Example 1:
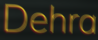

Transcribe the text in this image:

Dehra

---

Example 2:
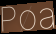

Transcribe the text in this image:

Poa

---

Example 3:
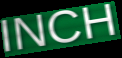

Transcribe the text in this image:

INCH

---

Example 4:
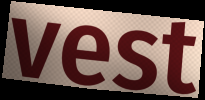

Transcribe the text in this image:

vest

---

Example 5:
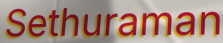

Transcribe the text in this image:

Sethuraman